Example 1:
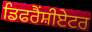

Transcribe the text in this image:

ਡਿਫਰੈਂਸ਼ੀਏਟਰ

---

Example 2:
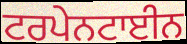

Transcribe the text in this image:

ਟਰਪੇਨਟਾਈਨ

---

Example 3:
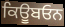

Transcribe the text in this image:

ਕਿਊਬਓਨ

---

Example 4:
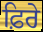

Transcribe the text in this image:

ਫ਼ਿਰੇ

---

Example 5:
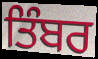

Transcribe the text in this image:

ਤਿੰਬਰ